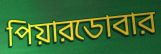
পিয়ারডোবার